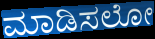
ಮಾಡಿಸಲೋ